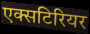
एक्सटिरियर